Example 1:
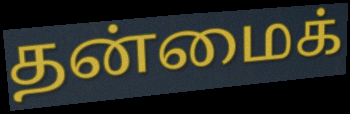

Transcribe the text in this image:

தன்மைக்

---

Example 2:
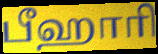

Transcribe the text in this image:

பீஹாரி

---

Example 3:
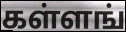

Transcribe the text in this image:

கள்ளங்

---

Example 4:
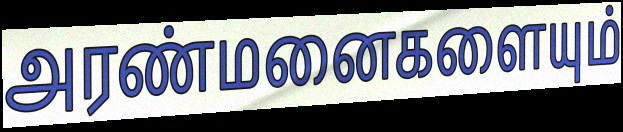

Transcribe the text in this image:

அரண்மனைகளையும்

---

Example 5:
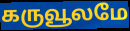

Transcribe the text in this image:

கருவூலமே